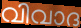
വിവാദ